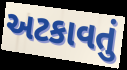
અટકાવતું